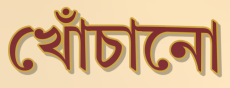
খোঁচানো